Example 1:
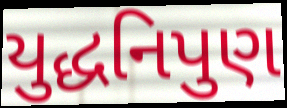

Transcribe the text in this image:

યુદ્ધનિપુણ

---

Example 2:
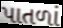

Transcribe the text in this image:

પાતળાં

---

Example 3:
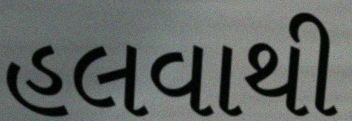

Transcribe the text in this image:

હલવાથી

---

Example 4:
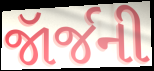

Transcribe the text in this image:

જૉર્જની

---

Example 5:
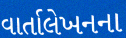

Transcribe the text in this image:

વાર્તાલેખનના